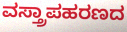
ವಸ್ತ್ರಾಪಹರಣದ